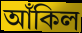
আঁকিল